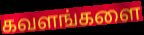
கவளங்களை